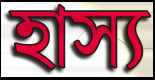
হাস্য